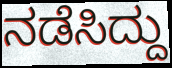
ನಡೆಸಿದ್ದು